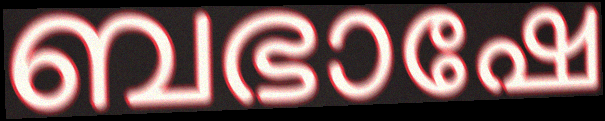
ബഭാഷേ